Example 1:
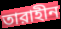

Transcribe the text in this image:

তারাহীন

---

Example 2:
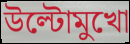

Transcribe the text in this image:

উল্টোমুখো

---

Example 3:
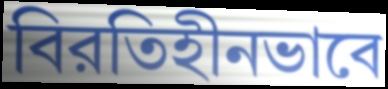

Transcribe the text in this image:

বিরতিহীনভাবে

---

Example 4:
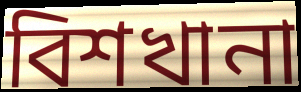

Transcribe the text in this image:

বিশখানা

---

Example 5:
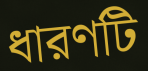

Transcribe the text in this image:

ধারণটি